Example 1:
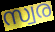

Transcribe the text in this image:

സ്വര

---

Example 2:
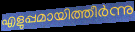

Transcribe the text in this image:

എളുപ്പമായിത്തീർന്നു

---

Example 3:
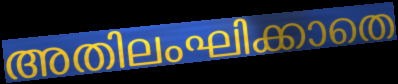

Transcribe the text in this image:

അതിലംഘിക്കാതെ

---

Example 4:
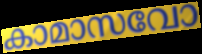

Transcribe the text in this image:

കാമാസവോ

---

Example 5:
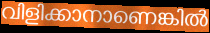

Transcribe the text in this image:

വിളിക്കാനാണെങ്കിൽ